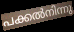
പക്കൽനിന്നു